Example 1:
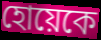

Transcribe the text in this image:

হোয়েকে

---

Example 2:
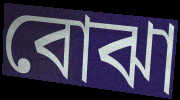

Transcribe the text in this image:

বোঝা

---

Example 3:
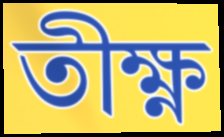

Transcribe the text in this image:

তীক্ষ্ণ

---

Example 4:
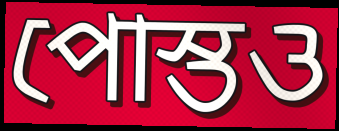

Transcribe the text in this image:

পোস্তও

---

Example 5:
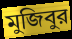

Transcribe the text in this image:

মুজিবুর